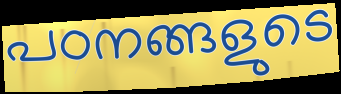
പഠനങ്ങളുടെ